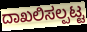
ದಾಖಲಿಸಲ್ಪಟ್ಟ